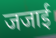
जजाई